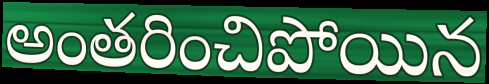
అంతరించిపోయిన